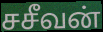
சசீவன்